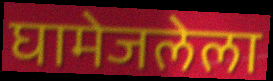
घामेजलेला